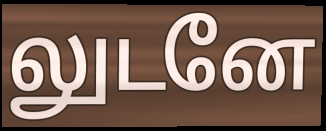
லுடனே